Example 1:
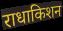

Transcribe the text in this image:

राधाकिशन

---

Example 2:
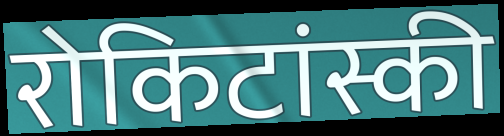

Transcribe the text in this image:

रोकिटांस्की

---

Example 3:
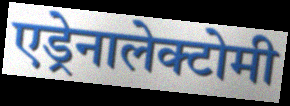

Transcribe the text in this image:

एड्रेनालेक्टोमी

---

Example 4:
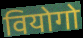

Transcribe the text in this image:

वियोगो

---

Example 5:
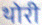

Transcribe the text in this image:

थोरी